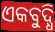
ଏକବୁଦ୍ଧି